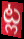
ట్ల